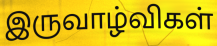
இருவாழ்விகள்